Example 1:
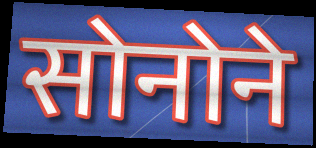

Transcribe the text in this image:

सोनोने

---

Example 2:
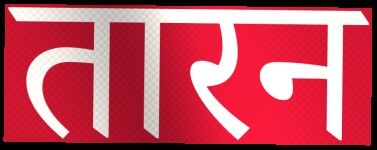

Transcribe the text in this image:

तारन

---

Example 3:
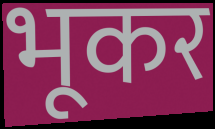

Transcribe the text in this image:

भूकर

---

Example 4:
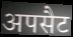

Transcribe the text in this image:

अपसैट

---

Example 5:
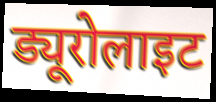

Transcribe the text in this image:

ड्यूरोलाइट